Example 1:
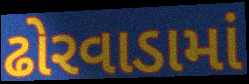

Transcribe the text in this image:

ઢોરવાડામાં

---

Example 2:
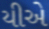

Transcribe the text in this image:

યીએ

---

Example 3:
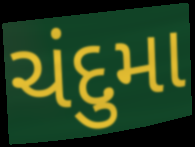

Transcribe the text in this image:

ચંદુમા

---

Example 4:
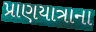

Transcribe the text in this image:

પ્રાણયાત્રાના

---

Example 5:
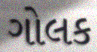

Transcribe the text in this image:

ગોલક